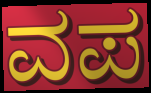
ವಪ